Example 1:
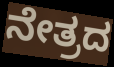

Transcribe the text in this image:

ನೇತ್ರದ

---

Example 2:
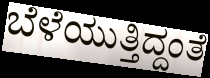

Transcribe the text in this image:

ಬೆಳೆಯುತ್ತಿದ್ದಂತೆ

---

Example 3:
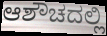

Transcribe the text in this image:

ಆಶೌಚದಲ್ಲಿ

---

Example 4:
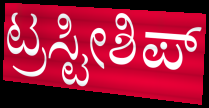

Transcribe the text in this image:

ಟ್ರಸ್ಟೀಶಿಪ್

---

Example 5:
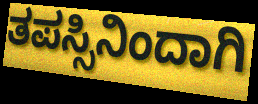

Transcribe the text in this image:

ತಪಸ್ಸಿನಿಂದಾಗಿ